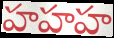
హహహ